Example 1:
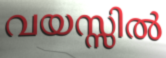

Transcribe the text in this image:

വയസ്സിൽ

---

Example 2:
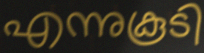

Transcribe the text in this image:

എന്നുകൂടി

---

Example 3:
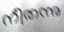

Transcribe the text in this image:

നീതന്നു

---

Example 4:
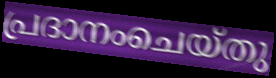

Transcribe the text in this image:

പ്രദാനംചെയ്തു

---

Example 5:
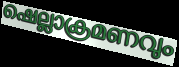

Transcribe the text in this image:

ഷെല്ലാക്രമണവും